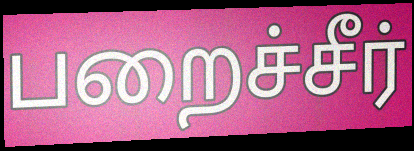
பறைச்சீர்